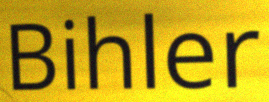
Bihler